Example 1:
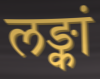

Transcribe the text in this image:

लङ्कां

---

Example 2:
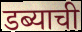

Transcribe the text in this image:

डब्याची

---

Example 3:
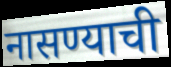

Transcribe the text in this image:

नासण्याची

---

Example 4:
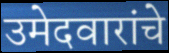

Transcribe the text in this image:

उमेदवारांचे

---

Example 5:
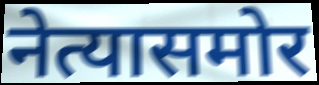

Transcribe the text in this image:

नेत्यासमोर